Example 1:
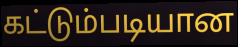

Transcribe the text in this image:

கட்டும்படியான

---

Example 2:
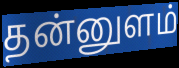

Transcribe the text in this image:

தன்னுளம்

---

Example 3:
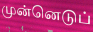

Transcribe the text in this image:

முன்னெடுப்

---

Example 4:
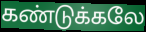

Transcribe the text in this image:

கண்டுக்கலே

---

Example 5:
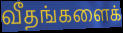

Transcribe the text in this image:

வீதங்களைக்